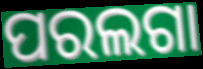
ପରଲଗା